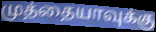
முத்தையாவுக்கு